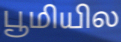
பூமியில